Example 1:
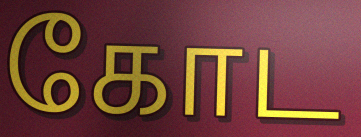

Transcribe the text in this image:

கோட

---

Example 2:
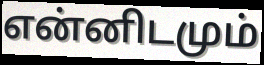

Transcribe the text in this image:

என்னிடமும்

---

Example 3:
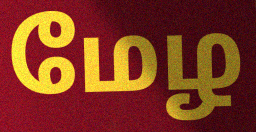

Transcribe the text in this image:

மேழ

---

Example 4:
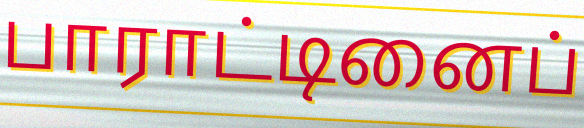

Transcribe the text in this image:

பாராட்டினைப்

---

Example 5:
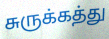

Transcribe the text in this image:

சுருக்கத்து